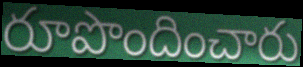
రూపొందించారు